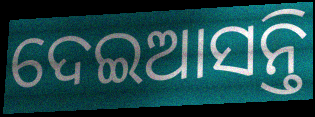
ଦେଇଆସନ୍ତି